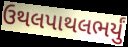
ઉથલપાથલભર્યું